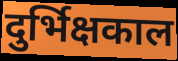
दुर्भिक्षकाल